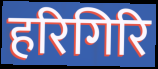
हरिगिरि